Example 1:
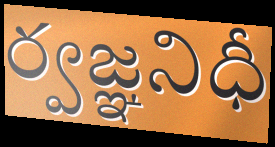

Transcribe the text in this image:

ర్వజ్ఞనిధీ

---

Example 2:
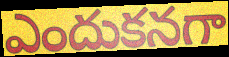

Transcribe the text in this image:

ఎందుకనగా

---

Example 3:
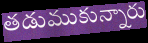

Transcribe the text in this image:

తడుముకున్నారు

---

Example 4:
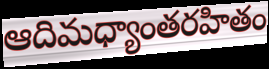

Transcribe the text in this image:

ఆదిమధ్యాంతరహితం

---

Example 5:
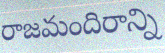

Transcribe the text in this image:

రాజమందిరాన్ని